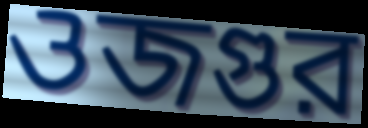
ওজগুর